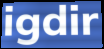
igdir